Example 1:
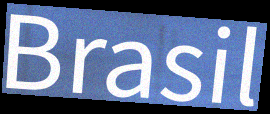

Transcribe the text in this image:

Brasil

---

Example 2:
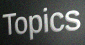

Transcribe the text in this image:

Topics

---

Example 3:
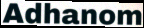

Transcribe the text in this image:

Adhanom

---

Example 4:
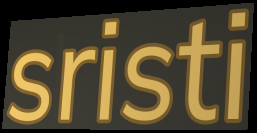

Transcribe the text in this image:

sristi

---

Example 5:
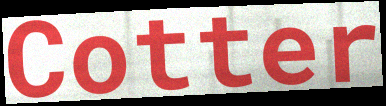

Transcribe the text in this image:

Cotter